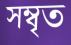
সম্বৃত